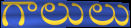
గాలులు